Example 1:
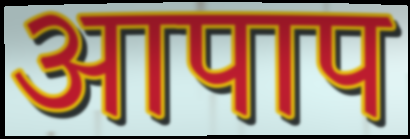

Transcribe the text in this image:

आपाप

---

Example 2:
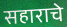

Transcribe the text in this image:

सहाराचे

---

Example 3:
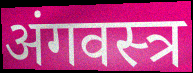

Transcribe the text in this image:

अंगवस्त्र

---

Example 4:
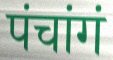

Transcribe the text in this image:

पंचांगं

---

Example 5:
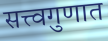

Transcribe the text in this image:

सत्त्वगुणात